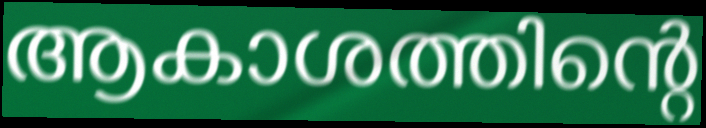
ആകാശത്തിന്റെ